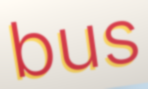
bus